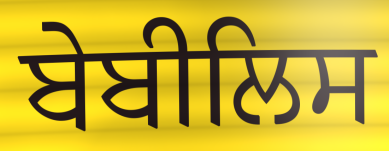
ਬੇਬੀਲਿਸ